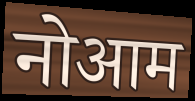
नोआम